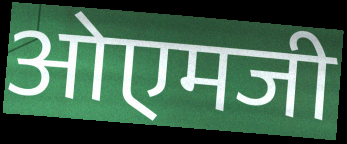
ओएमजी